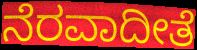
ನೆರವಾದೀತೆ